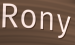
Rony